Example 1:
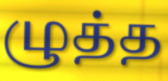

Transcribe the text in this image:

ழுத்த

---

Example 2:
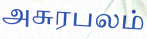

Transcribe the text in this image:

அசுரபலம்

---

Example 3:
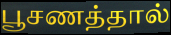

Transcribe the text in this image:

பூசணத்தால்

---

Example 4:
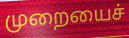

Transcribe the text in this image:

முறையைச்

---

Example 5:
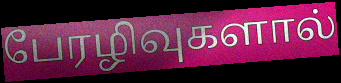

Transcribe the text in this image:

பேரழிவுகளால்